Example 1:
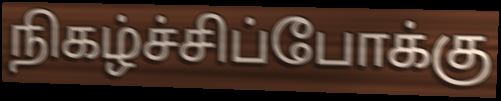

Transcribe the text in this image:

நிகழ்ச்சிப்போக்கு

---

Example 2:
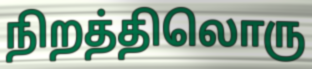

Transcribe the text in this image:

நிறத்திலொரு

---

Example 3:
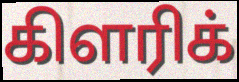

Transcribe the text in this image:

கிளரிக்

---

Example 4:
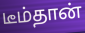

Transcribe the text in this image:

டீம்தான்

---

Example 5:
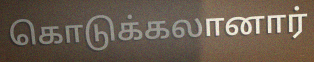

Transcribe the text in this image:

கொடுக்கலானார்